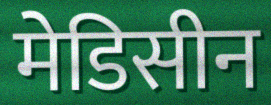
मेडिसीन